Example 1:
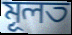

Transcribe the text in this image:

মূলত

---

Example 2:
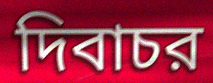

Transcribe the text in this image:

দিবাচর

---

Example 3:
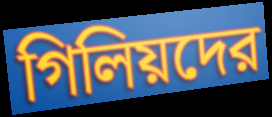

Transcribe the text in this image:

গিলিয়দের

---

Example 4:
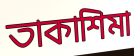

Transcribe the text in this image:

তাকাশিমা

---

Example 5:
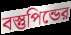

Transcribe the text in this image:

বস্তুপিন্ডের